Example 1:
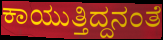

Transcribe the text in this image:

ಕಾಯುತ್ತಿದ್ದನಂತೆ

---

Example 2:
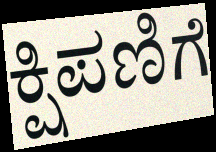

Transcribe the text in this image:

ಕ್ಷಿಪಣಿಗೆ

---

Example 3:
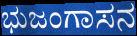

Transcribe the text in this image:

ಭುಜಂಗಾಸನ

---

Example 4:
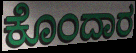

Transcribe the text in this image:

ಕೊಂದಾರ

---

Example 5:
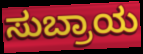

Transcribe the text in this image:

ಸುಬ್ರಾಯ